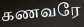
கணவரே